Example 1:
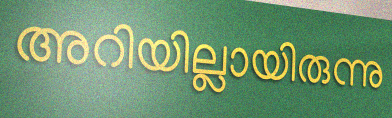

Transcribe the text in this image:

അറിയില്ലായിരുന്നു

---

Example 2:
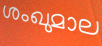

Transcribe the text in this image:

ശംഖുമാല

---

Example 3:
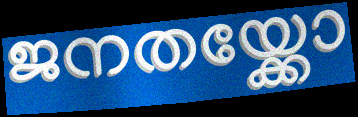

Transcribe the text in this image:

ജനതയ്ക്കോ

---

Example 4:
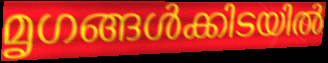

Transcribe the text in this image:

മൃഗങ്ങൾക്കിടയിൽ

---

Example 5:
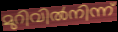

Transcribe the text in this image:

മുറിവിൽനിന്ന്